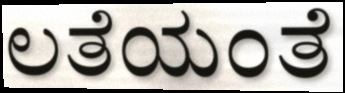
ಲತೆಯಂತೆ